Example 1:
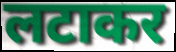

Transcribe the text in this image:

लटाकर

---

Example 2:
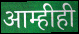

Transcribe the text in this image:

आम्हीही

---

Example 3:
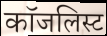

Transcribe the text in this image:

कॉजलिस्ट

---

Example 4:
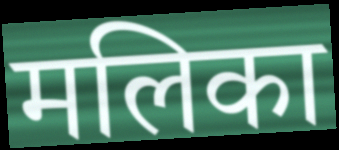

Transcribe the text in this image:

मलिका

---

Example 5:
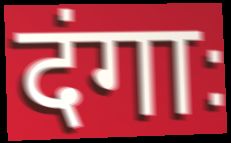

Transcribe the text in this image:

दंगाः